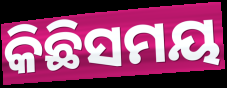
କିଛିସମୟ